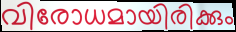
വിരോധമായിരിക്കും